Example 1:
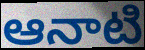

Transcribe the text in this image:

ఆనాటి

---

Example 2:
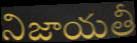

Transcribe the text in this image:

నిజాయతీ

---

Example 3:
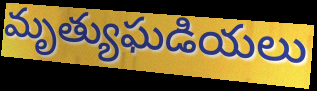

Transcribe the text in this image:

మృత్యుఘడియలు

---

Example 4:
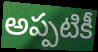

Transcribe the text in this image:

అప్పటికీ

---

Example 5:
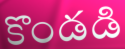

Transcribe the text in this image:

కొండడి